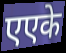
एएके